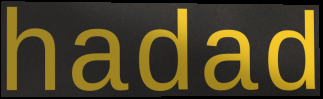
hadad